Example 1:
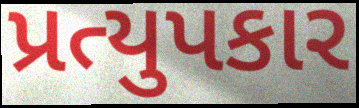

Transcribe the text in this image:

પ્રત્યુપકાર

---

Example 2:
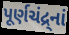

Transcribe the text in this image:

પૂર્ણચંદ્ર્નાં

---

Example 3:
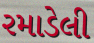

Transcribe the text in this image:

રમાડેલી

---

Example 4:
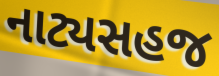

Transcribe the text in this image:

નાટ્યસહજ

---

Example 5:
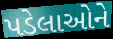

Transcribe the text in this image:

પડેલાઓને